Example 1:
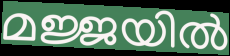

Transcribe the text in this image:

മജ്ജയിൽ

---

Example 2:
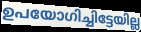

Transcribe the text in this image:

ഉപയോഗിച്ചിട്ടേയില്ല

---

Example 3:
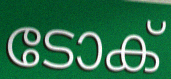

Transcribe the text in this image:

ടോക്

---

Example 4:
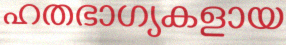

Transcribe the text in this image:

ഹതഭാഗ്യകളായ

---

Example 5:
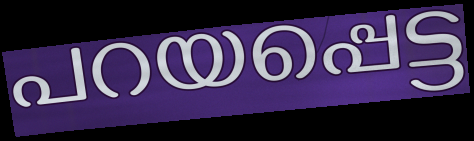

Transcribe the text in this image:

പറയപ്പെട്ട